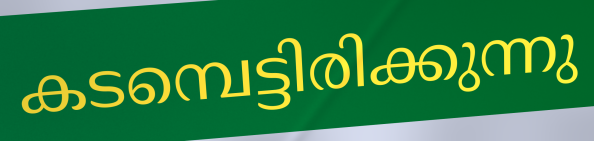
കടമ്പെട്ടിരിക്കുന്നു